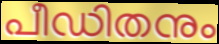
പീഡിതനും